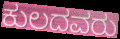
ಕುಲದವರು